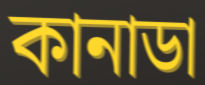
কানাডা